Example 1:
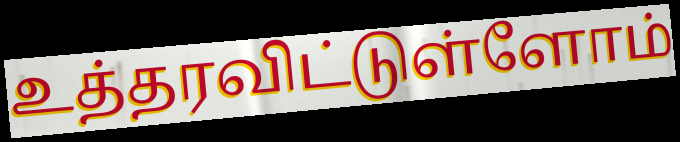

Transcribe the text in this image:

உத்தரவிட்டுள்ளோம்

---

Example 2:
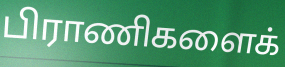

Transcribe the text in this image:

பிராணிகளைக்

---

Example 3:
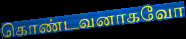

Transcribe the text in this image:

கொண்டவனாகவோ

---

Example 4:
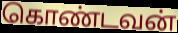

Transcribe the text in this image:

கொண்டவன்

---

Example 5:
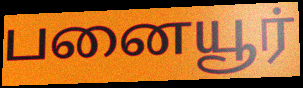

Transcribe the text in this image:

பனையூர்